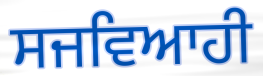
ਸਜਵਿਆਹੀ